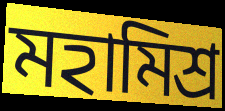
মহামিশ্র